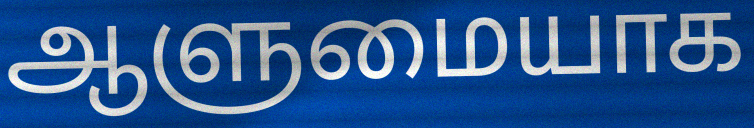
ஆளுமையாக